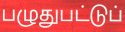
பழுதுபட்டுப்